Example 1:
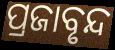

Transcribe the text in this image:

ପ୍ରଜାବୃନ୍ଦ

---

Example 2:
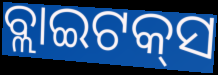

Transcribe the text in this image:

ବ୍ଲାଇଟକ୍‌ସ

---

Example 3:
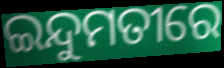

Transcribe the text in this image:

ଇନ୍ଦୁମତୀରେ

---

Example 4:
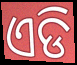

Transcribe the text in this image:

ଏଡି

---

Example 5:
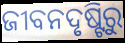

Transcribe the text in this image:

ଜୀବନଦୃଷ୍ଟିରୁ